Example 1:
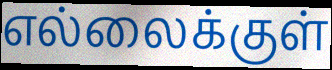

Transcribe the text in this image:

எல்லைக்குள்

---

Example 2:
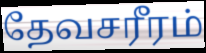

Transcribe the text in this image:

தேவசரீரம்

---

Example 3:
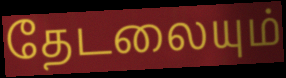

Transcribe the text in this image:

தேடலையும்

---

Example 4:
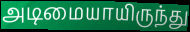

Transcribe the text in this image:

அடிமையாயிருந்து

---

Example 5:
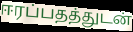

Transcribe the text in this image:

ஈரப்பதத்துடன்